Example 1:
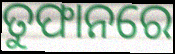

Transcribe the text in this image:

ତୁଫାନରେ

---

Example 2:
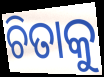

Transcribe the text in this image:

ଚିତାକୁ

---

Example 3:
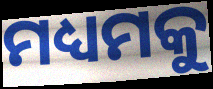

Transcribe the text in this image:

ମଧ୍ୟମକୁ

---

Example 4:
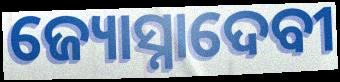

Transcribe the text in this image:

ଜ୍ୟୋସ୍ନାଦେବୀ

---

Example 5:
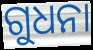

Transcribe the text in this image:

ଗୁଧନା